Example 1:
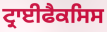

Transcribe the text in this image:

ਟ੍ਰਾਈਫੈਕਸਿਸ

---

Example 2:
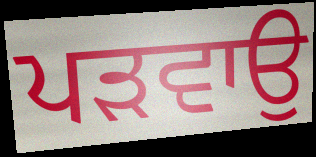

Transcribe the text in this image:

ਪੜਵਾਉ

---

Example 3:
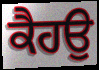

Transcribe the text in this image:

ਕੈਹਉ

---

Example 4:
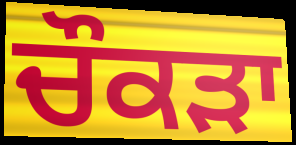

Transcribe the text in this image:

ਚੌਕੜਾ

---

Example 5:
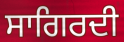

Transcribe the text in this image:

ਸਾਗਿਰਦੀ